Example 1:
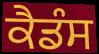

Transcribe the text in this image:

ਕੈਡੰਸ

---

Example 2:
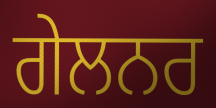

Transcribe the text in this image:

ਗੇਲਨਰ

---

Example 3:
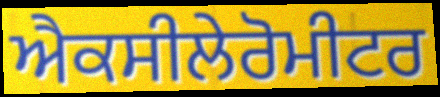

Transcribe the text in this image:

ਐਕਸੀਲੇਰੋਮੀਟਰ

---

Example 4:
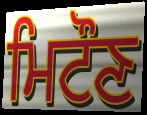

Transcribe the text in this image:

ਮਿਟੌਣ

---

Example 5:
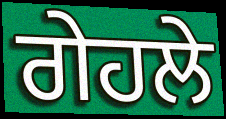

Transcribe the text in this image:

ਗੇਹਲੇ